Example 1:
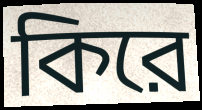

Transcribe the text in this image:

কিরে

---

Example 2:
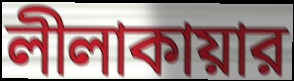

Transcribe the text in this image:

লীলাকায়ার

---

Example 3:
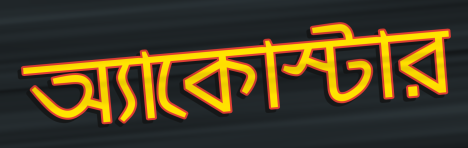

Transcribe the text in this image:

অ্যাকোস্টার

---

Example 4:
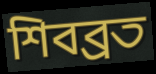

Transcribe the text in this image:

শিবব্রত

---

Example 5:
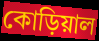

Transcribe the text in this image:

কোড়িয়াল